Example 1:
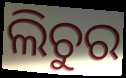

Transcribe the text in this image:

ଲିଚୁର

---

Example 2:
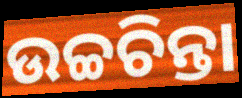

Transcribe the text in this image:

ଉଚ୍ଚଚିନ୍ତା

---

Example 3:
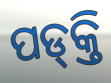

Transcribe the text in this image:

ପଡ୍‌କ୍ତି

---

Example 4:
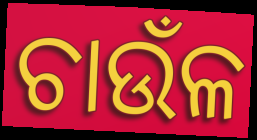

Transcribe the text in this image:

ଚାଉଁଳ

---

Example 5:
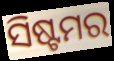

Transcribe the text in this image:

ସିଷ୍ଟମର